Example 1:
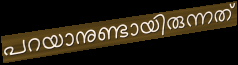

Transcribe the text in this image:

പറയാനുണ്ടായിരുന്നത്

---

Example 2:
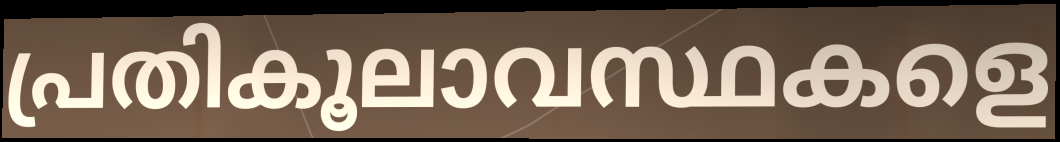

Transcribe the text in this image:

പ്രതികൂലാവസ്ഥകളെ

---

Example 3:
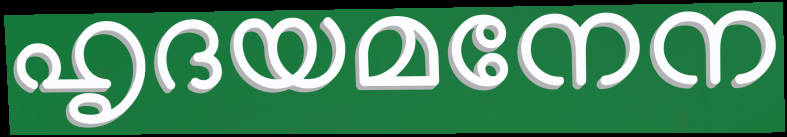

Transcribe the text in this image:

ഹൃദയമനേന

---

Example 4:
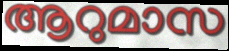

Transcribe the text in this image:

ആറുമാസ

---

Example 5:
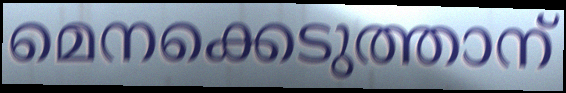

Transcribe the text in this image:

മെനക്കെടുത്താന്